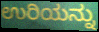
ಉರಿಯನ್ನು